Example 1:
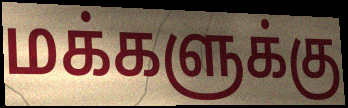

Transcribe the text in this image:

மக்களுக்கு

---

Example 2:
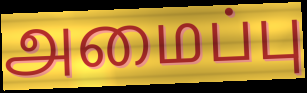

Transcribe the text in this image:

அமைப்பு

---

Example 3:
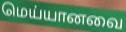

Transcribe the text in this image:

மெய்யானவை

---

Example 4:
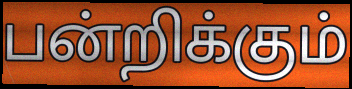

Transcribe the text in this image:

பன்றிக்கும்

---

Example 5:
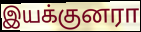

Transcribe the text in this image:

இயக்குனரா